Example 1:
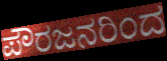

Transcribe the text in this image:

ಪೌರಜನರಿಂದ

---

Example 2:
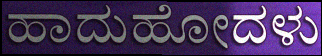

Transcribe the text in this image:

ಹಾದುಹೋದಳು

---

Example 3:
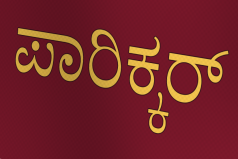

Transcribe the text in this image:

ಪಾರಿಕ್ಕರ್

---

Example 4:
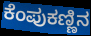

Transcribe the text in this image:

ಕೆಂಪುಕಣ್ಣಿನ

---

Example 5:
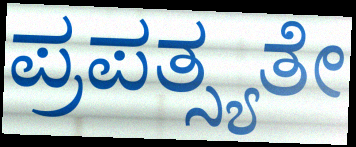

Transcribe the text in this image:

ಪ್ರಪತ್ಸ್ಯತೇ